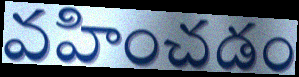
వహించడం